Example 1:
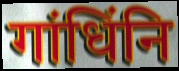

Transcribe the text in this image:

गांधिंनि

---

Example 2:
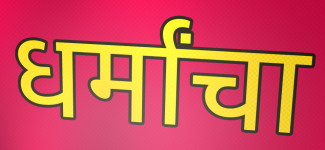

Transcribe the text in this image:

धर्मांचा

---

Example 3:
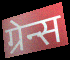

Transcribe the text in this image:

ग्रेन्स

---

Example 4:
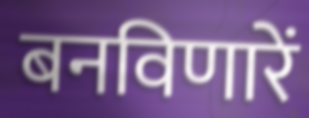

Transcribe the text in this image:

बनविणारें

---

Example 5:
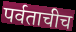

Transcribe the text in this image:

पर्वताचीच